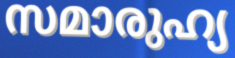
സമാരുഹ്യ